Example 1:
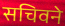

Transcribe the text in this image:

सचिवने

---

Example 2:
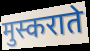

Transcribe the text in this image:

मुस्कराते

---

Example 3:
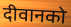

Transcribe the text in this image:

दीवानको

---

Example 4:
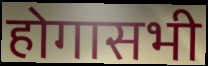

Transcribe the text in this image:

होगासभी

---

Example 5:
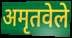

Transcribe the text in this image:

अमृतवेले